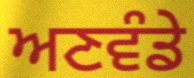
ਅਣਵੰਡੇ